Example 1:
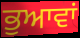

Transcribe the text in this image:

ਭੁਆਵਾਂ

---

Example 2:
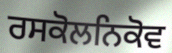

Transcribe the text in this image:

ਰਸਕੋਲਨਿਕੋਵ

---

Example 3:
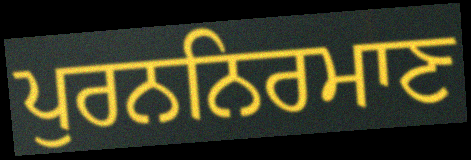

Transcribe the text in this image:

ਪੁਰਨਨਿਰਮਾਣ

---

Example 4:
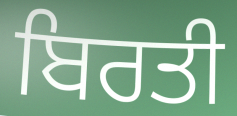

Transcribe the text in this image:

ਬਿਰਤੀ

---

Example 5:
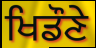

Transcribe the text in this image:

ਖਿਡੌਣੇ